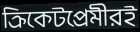
ক্রিকেটপ্রেমীরই